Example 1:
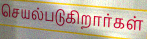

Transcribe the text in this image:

செயல்படுகிறார்கள்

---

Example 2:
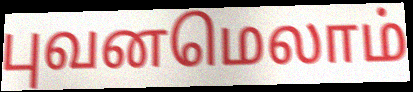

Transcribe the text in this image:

புவனமெலாம்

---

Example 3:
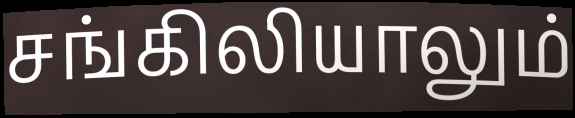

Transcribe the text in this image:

சங்கிலியாலும்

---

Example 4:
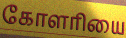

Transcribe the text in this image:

கோளரியை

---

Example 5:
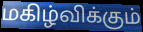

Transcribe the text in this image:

மகிழ்விக்கும்